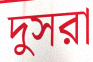
দুসরা